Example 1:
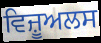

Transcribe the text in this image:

ਵਿਜ਼ੂਅਲਸ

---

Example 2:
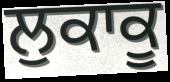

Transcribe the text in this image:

ਲੁਕਾਕੂ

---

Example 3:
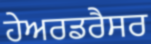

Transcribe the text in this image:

ਹੇਅਰਡਰੈਸਰ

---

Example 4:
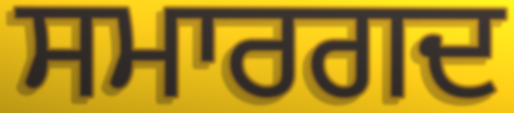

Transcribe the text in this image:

ਸਮਾਰਗਦ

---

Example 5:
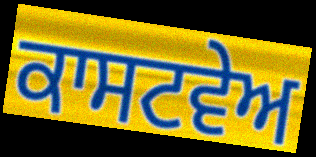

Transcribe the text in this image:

ਕਾਸਟਵੇਅ